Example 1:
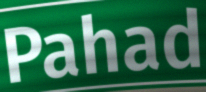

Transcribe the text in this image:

Pahad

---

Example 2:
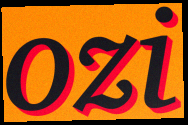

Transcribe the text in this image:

ozi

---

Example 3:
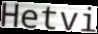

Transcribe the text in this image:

Hetvi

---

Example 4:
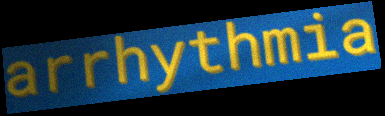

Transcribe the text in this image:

arrhythmia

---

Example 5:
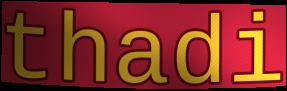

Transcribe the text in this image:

thadi